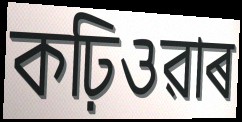
কঢ়িওৱাৰ